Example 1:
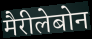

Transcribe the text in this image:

मैरीलेबोन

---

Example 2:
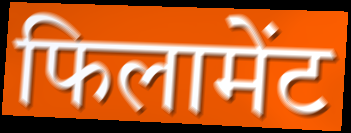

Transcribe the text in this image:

फिलामेंट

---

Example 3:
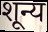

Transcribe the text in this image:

शून्य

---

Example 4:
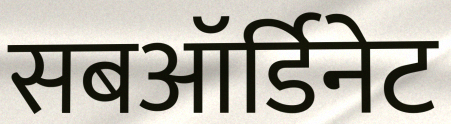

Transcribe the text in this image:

सबऑर्डिनेट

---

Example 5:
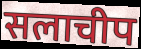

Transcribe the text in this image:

सलाचीप